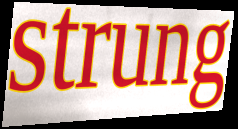
strung